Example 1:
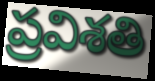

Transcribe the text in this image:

ప్రవిశతి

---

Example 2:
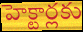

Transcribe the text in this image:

హెక్టార్లకు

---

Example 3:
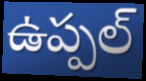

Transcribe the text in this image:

ఉప్పల్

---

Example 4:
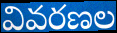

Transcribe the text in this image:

వివరణల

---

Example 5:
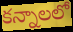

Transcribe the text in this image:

కన్నాలలో